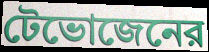
টেভোজেনের